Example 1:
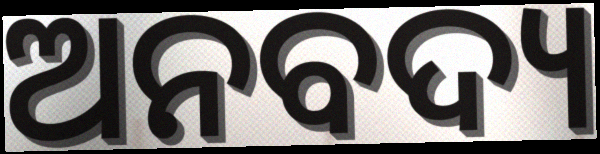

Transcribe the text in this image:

ଅନବଦ୍ୟ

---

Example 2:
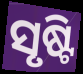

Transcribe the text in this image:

ସୃଷ୍ଟି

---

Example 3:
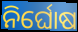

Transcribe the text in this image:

ନିର୍ଘୋଷ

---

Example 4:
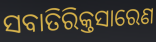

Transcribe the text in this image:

ସବାତିରିକ୍ତସାରେଣ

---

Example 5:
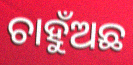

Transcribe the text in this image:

ଚାହୁଁଅଛ